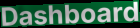
Dashboard